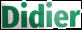
Didier